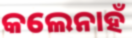
କଲେନାହଁ